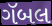
ગૅબલ